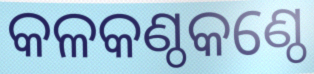
କଳକଣ୍ଠକଣ୍ଠେ